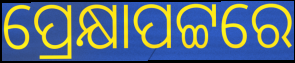
ପ୍ରେକ୍ଷାପଟ୍ଟରେ